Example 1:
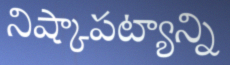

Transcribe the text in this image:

నిష్కాపట్యాన్ని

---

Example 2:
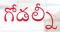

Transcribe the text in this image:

గోడల్నీ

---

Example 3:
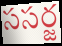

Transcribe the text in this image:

ససర్జ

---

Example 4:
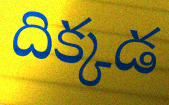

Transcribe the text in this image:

దిక్కడ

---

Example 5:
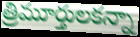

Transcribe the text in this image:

త్రిమూర్తులకన్నా